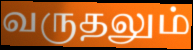
வருதலும்